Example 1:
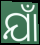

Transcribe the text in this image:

ଯାଁ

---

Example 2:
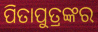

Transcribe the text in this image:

ପିତାପୁତ୍ରଙ୍କର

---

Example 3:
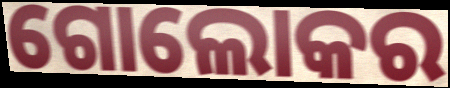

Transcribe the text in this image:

ଗୋଲୋକର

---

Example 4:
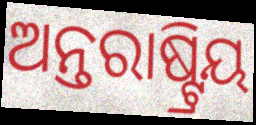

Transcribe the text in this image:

ଅନ୍ତରାଷ୍ଟ୍ରିୟ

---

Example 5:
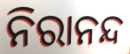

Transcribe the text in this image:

ନିରାନନ୍ଦ